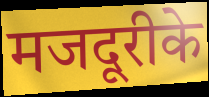
मजदूरीके